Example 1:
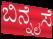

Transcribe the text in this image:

ಬಿನ್ನೈಸೆ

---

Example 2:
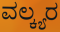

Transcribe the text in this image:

ವಲ್ಕ್ಯರ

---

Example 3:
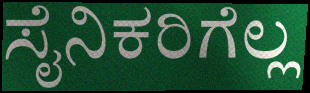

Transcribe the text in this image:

ಸೈನಿಕರಿಗೆಲ್ಲ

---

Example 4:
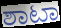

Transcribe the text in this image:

ಶಾಟಾ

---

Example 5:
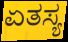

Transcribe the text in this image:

ಏತಸ್ಯ